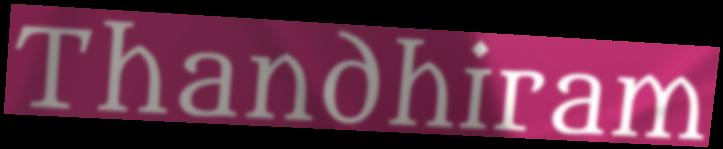
Thandhiram